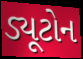
ડ્યૂટોન